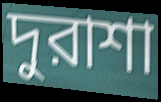
দুরাশা